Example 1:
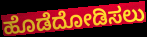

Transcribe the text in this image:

ಹೊಡೆದೋಡಿಸಲು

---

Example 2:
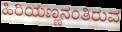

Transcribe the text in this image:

ಹಿರಿಯಣ್ಣನಂತಿರುವ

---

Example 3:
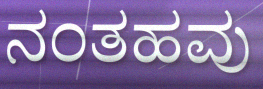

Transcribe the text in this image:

ನಂತಹವು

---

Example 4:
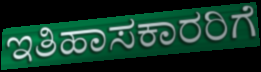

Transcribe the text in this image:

ಇತಿಹಾಸಕಾರರಿಗೆ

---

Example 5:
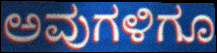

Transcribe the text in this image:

ಅವುಗಳಿಗೂ